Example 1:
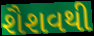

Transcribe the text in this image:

શૈશવથી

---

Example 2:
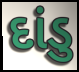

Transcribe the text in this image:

દાંડુ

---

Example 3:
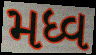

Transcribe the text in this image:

મધ્વ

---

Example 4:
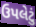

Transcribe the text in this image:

ઉપલેટું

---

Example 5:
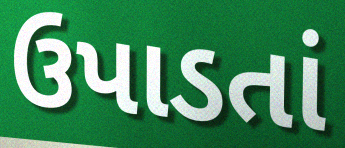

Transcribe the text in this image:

ઉપાડતાં